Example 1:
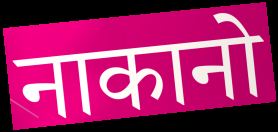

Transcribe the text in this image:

नाकानो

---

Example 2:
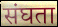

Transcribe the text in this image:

संघता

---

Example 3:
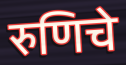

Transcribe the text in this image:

रुणिचे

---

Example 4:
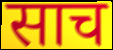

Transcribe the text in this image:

साच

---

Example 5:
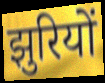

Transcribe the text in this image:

झुरियों